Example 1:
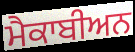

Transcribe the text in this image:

ਮੈਕਾਬੀਅਨ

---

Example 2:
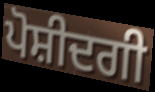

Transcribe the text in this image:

ਪੋਸ਼ੀਦਗੀ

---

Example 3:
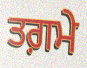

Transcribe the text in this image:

ਤਗ਼ਮੇ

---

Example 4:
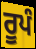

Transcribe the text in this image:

ਰੂਪੰ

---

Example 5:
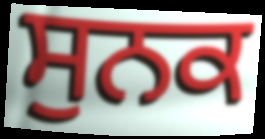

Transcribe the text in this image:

ਸੁਨਕ